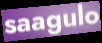
saagulo